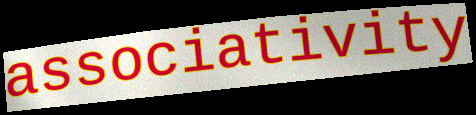
associativity